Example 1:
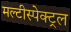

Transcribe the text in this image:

मल्टीस्पेक्ट्रल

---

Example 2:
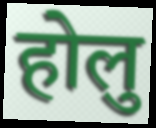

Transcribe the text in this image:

होलु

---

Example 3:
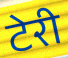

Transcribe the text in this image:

टेरी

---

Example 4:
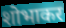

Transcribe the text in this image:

शोभाकर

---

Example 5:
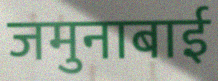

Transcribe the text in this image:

जमुनाबाई